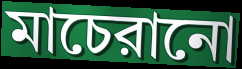
মাচেরানো